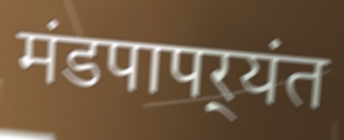
मंडपापर्यंत